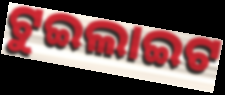
ଟୁଇଲାଇଟ